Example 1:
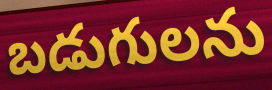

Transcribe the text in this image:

బడుగులను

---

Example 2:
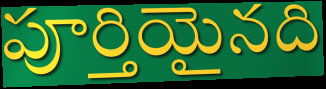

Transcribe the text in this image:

పూర్తియైనది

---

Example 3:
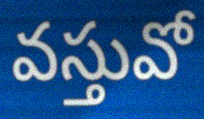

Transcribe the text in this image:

వస్తువో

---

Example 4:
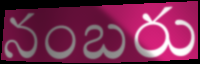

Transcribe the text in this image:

నంబరు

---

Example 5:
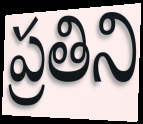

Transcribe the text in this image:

ప్రతిని